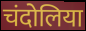
चंदोलिया